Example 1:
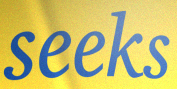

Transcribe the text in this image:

seeks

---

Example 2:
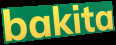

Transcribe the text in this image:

bakita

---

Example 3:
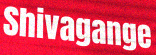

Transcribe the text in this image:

Shivagange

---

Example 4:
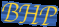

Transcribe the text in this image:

BHP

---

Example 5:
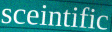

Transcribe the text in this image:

sceintific